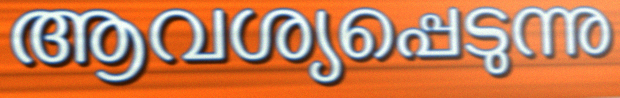
ആവശ്യപ്പെടുന്നു